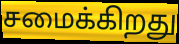
சமைக்கிறது